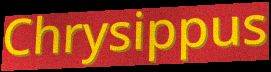
Chrysippus